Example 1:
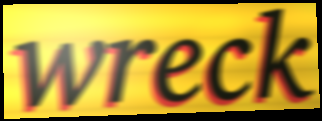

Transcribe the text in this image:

wreck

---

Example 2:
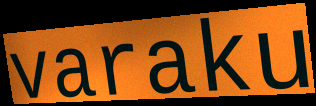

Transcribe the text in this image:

varaku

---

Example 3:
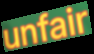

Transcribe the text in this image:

unfair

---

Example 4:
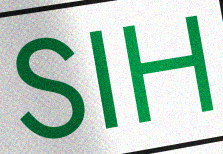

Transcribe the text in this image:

SIH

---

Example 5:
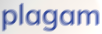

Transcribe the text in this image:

plagam